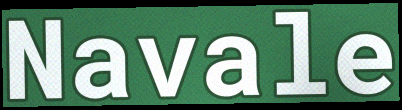
Navale